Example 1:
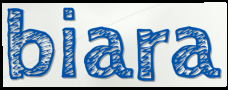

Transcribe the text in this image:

biara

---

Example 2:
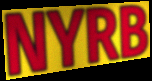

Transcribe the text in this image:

NYRB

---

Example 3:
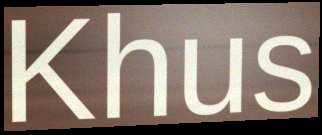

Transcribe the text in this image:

Khus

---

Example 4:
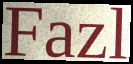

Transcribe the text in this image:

Fazl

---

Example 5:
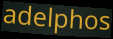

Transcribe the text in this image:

adelphos